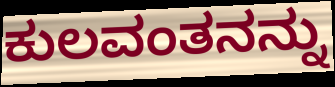
ಕುಲವಂತನನ್ನು